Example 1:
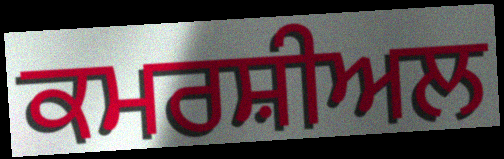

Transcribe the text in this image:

ਕਮਰਸ਼ੀਅਲ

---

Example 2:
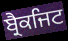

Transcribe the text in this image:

ਬ੍ਰੈਕਜਿਟ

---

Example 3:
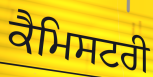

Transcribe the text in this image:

ਕੈਮਿਸਟਰੀ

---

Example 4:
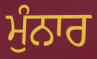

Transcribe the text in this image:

ਮੁੰਨਾਰ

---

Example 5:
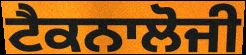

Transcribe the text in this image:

ਟੈਕਨਾਲੋਜੀ